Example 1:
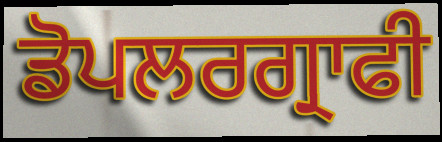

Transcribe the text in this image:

ਡੋਪਲਰਗ੍ਰਾਫੀ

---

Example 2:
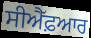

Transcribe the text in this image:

ਸੀਐੱਫ਼ਆਰ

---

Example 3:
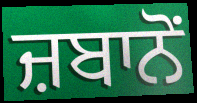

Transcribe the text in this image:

ਜ਼ਬਾਨੋਂ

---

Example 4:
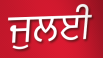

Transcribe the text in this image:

ਜੁਲਈ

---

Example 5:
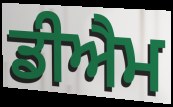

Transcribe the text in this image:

ਡੀਐਮ